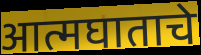
आत्मघाताचे